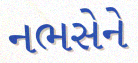
નભસેને